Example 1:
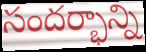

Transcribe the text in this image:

సందర్భాన్ని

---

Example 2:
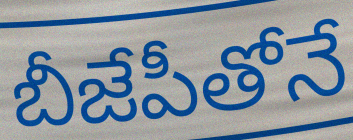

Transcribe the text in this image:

బీజేపీతోనే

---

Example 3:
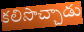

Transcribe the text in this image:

కలిసొచ్చాడు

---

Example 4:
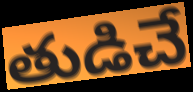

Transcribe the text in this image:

తుడిచే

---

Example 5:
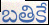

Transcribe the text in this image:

బతికే